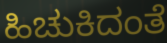
ಹಿಚುಕಿದಂತೆ